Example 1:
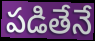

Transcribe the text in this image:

పడితేనే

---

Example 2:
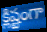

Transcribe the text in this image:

క్లిష్టంగా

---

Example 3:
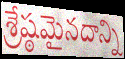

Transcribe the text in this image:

శ్రేష్ఠమైనదాన్ని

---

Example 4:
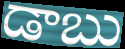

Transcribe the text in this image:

డాబు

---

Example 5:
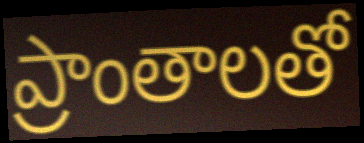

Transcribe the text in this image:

ప్రాంతాలతో